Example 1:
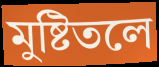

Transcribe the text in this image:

মুষ্টিতলে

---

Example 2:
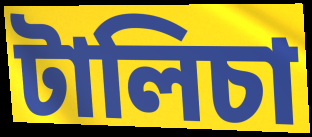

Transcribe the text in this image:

টালিচা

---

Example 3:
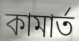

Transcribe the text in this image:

কামার্ত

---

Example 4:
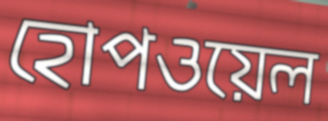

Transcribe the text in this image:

হোপওয়েল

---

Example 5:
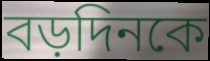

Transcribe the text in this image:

বড়দিনকে